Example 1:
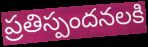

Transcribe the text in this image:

ప్రతిస్పందనలకి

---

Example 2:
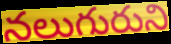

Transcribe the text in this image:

నలుగురుని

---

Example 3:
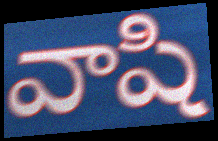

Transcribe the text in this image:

వాషి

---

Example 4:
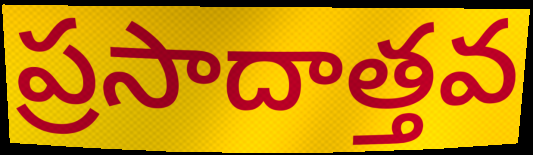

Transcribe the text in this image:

ప్రసాదాత్తవ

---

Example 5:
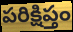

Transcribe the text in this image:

పరిక్షిప్తం